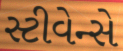
સ્ટીવેન્સે